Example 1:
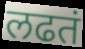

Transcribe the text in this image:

लढतं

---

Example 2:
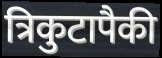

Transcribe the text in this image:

त्रिकुटापैकी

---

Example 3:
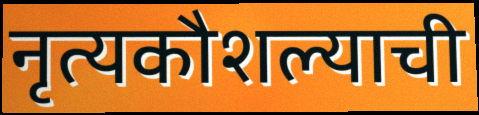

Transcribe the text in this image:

नृत्यकौशल्याची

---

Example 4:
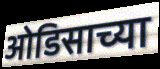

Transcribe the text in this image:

ओडिसाच्या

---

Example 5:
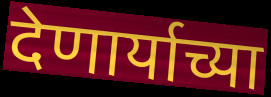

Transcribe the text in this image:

देणार्याच्या